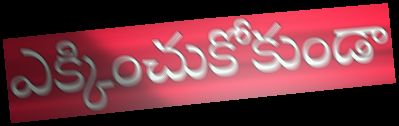
ఎక్కించుకోకుండా